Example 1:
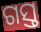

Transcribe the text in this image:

ଗସ୍ତ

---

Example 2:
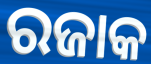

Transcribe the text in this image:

ରଜାକ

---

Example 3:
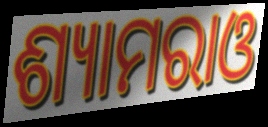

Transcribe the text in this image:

ଶ୍ୟାମରାଓ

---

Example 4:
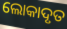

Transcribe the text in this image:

ଲୋକାଦୃତ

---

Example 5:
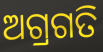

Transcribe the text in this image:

ଅଗ୍ରଗତି